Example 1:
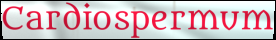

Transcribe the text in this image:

Cardiospermum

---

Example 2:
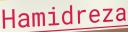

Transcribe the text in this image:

Hamidreza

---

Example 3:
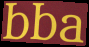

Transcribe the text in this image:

bba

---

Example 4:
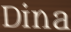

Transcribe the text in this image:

Dina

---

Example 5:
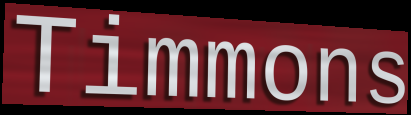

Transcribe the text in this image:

Timmons